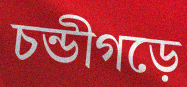
চন্ডীগড়ে